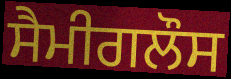
ਸੈਮੀਗਲੌਸ